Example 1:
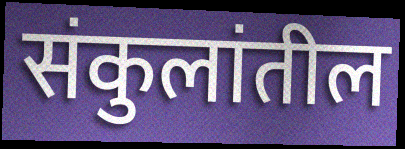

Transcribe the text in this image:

संकुलांतील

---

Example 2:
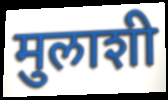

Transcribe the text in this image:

मुलाशी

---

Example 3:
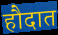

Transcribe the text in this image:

हौदात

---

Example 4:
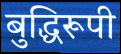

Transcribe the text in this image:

बुद्धिरूपी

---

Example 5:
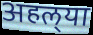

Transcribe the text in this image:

अहल्या